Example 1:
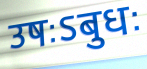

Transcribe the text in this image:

उषःऽबुधः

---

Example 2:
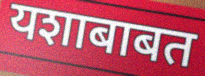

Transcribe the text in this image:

यशाबाबत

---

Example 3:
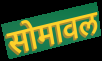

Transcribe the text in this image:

सोमावल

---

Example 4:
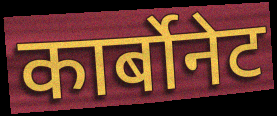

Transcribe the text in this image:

कार्बोनेट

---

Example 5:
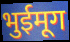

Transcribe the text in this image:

भुईमूग